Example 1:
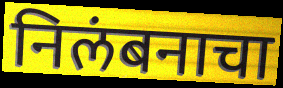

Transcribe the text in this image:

निलंबनाचा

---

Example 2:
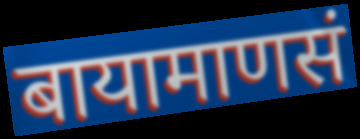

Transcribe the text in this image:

बायामाणसं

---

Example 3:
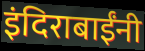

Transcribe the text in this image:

इंदिराबाईंनी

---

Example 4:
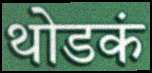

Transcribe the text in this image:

थोडकं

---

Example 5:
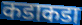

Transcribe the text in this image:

कडाकडा